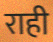
राही